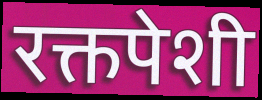
रक्तपेशी